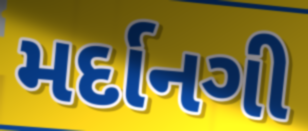
મર્દાનગી